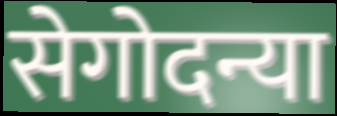
सेगोदन्या